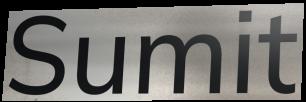
Sumit